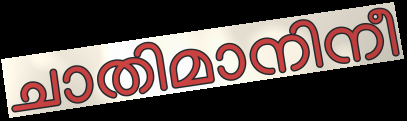
ചാതിമാനിനീ